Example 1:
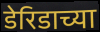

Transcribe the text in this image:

डेरिडाच्या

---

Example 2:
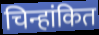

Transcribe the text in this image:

चिन्हांकित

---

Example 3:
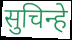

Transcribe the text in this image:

सुचिन्हे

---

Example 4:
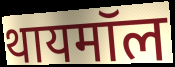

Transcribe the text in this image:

थायमॉल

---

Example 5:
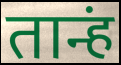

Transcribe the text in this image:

तान्हं